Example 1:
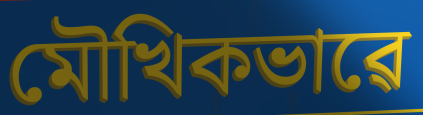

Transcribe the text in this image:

মৌখিকভাৱে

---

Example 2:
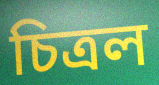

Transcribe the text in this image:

চিত্ৰল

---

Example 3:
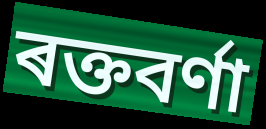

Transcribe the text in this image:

ৰক্তবৰ্ণা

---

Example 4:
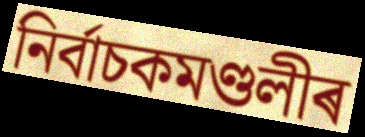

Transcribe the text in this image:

নিৰ্বাচকমণ্ডলীৰ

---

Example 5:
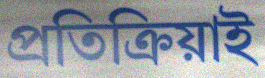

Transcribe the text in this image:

প্ৰতিক্ৰিয়াই